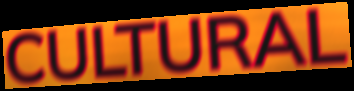
CULTURAL